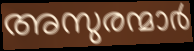
അസുരന്മാർ